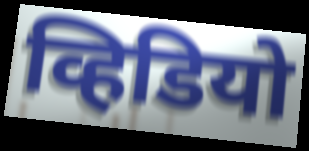
व्हिडियो